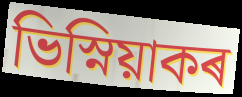
ভিস্নিয়াকৰ